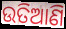
ଉତିଆଣି